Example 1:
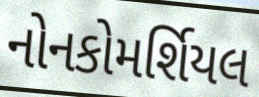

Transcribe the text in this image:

નોનકોમર્શિયલ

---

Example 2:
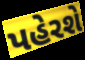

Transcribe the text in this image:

પહેરશે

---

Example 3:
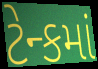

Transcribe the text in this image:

ટેન્કમાં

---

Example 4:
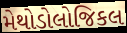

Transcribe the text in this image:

મેથોડોલોજિકલ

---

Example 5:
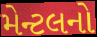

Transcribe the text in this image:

મેન્ટલનો